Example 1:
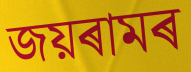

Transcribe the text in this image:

জয়ৰামৰ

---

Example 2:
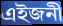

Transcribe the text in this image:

এইজনী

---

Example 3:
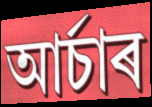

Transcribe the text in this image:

আৰ্চাৰ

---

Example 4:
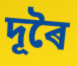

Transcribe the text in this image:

দূৰৈ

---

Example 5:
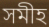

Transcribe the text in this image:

সমীহ